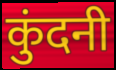
कुंदनी